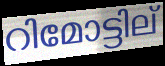
റിമോട്ടില്